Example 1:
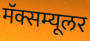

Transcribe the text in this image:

मॅक्सम्यूलर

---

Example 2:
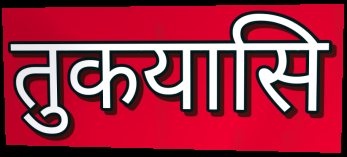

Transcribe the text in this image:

तुकयासि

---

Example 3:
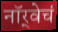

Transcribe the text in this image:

नॉर्वेचं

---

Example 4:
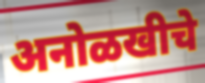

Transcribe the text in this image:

अनोळखीचे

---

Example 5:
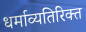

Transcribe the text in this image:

धर्माव्यतिरिक्त